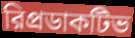
রিপ্রডাকটিভ